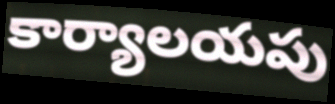
కార్యాలయపు